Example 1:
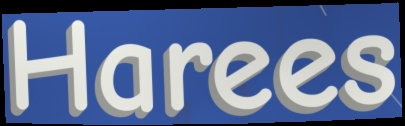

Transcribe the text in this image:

Harees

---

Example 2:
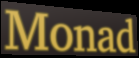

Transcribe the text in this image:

Monad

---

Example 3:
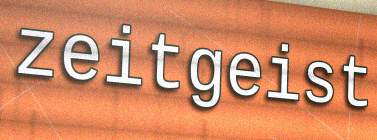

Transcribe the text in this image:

zeitgeist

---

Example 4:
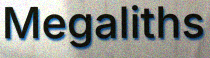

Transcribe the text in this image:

Megaliths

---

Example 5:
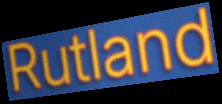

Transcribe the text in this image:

Rutland